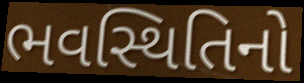
ભવસ્થિતિનો